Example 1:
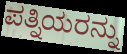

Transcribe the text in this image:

ಪತ್ನಿಯರನ್ನು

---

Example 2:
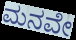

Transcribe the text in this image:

ಮನವೇ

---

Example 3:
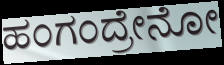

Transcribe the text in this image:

ಹಂಗಂದ್ರೇನೋ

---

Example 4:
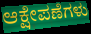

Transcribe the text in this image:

ಆಕ್ಷೇಪಣೆಗಳು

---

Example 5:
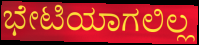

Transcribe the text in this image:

ಭೇಟಿಯಾಗಲಿಲ್ಲ